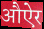
औऐर